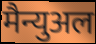
मैन्युअल